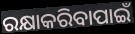
ରକ୍ଷାକରିବାପାଇଁ